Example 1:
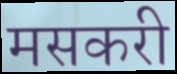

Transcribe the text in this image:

मसकरी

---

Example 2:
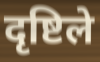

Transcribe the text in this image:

दृष्टिले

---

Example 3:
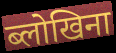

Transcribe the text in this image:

ब्लोखिना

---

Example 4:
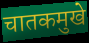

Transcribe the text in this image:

चातकमुखे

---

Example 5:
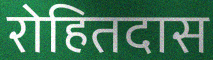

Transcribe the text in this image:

रोहितदास